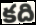
కది